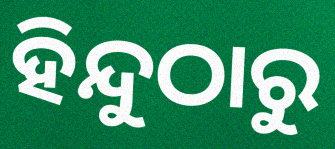
ହିନ୍ଦୁଠାରୁ